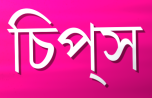
চিপ্‌স